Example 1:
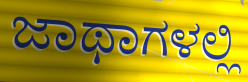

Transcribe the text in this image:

ಜಾಥಾಗಳಲ್ಲಿ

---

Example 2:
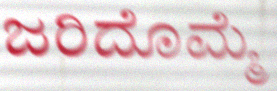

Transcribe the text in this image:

ಜರಿದೊಮ್ಮೆ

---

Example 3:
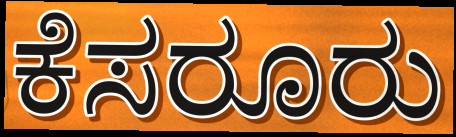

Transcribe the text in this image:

ಕೆಸರೂರು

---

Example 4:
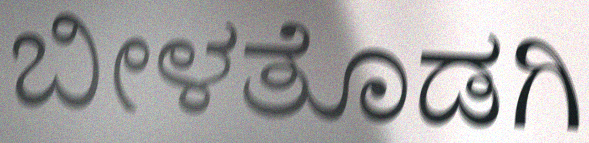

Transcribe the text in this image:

ಬೀಳತೊಡಗಿ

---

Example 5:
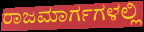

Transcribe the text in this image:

ರಾಜಮಾರ್ಗಗಳಲ್ಲಿ